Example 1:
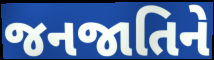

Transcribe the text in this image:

જનજાતિને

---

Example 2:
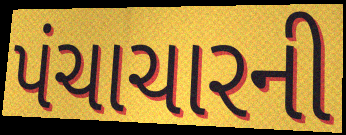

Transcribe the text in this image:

પંચાચારની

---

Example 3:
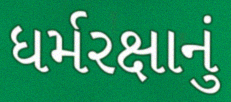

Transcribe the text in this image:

ધર્મરક્ષાનું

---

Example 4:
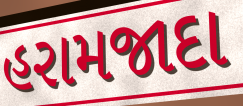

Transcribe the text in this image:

હરામજાદા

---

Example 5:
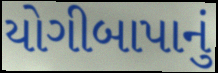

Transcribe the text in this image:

યોગીબાપાનું